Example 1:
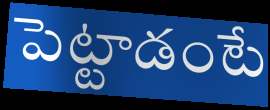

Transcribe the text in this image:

పెట్టాడంటే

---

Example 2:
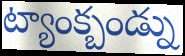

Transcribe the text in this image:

ట్యాంక్బండ్ను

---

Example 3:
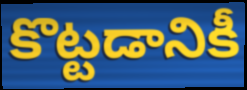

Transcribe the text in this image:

కొట్టడానికీ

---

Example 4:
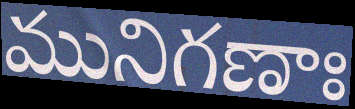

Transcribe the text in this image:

మునిగణాః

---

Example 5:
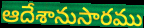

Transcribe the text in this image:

ఆదేశానుసారము